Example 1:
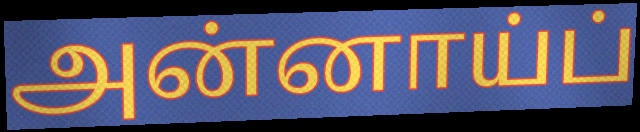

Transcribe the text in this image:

அன்னாய்ப்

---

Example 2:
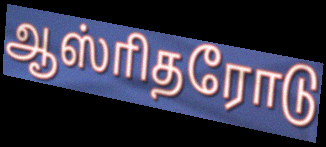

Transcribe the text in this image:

ஆஸ்ரிதரோடு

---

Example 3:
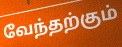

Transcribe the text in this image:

வேந்தற்கும்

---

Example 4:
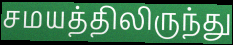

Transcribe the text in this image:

சமயத்திலிருந்து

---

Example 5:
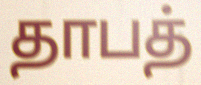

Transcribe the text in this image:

தாபத்